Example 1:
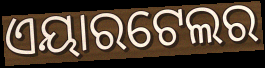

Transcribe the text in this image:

ଏୟାରଟେଲର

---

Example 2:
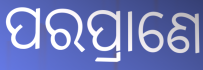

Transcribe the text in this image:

ପରପ୍ରାଣେ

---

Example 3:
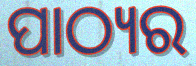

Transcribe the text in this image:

ପାଠ୍ୟର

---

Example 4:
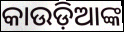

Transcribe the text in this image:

କାଉଡ଼ିଆଙ୍କ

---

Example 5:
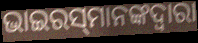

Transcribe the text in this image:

ଭାଇରସ୍‌ମାନଙ୍କଦ୍ୱାରା